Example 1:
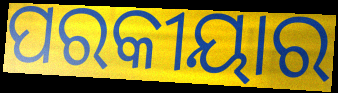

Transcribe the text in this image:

ପରକୀୟାର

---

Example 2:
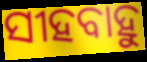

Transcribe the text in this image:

ସୀହବାହୁ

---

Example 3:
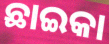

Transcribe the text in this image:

ଛାଇକା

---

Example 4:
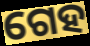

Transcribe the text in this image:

ଗେହ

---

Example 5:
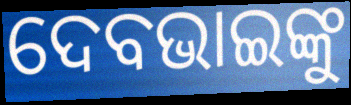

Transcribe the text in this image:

ଦେବଭାଇଙ୍କୁ